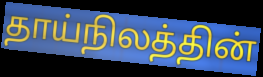
தாய்நிலத்தின்